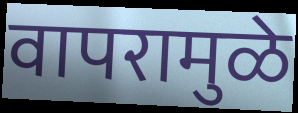
वापरामुळे